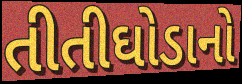
તીતીઘોડાનો